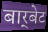
बार्बेट